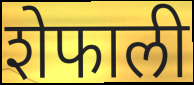
शेफाली